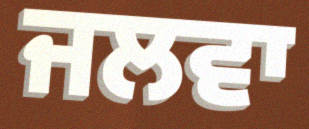
ਜਲਵਾ